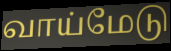
வாய்மேடு